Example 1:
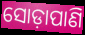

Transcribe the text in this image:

ସୋଡ଼ାପାଣି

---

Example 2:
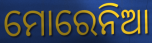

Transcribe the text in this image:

ମୋରେନିଆ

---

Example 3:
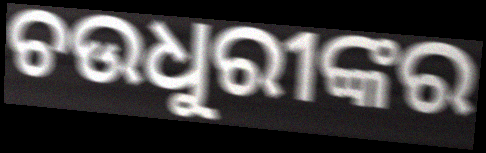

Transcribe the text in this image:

ଚଉଧୁରୀଙ୍କର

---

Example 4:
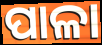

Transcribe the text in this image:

ପାଳା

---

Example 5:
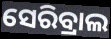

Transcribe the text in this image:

ସେରିବ୍ରାଲ